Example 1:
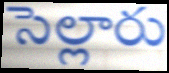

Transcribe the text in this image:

సెల్లారు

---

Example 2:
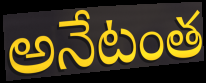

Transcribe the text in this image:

అనేటంత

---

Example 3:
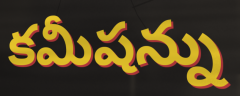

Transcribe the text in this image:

కమీషన్ను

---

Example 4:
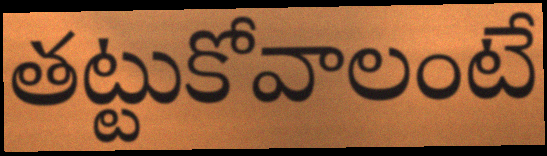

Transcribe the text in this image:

తట్టుకోవాలంటే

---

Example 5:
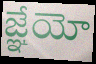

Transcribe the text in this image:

జ్ఞేయో